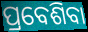
ପ୍ରବେଶିବା